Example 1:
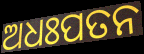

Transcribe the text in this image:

ଅଧଃପତନ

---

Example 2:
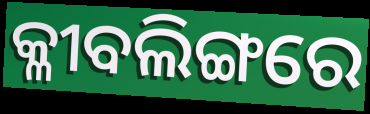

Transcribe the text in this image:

କ୍ଳୀବଲିଙ୍ଗରେ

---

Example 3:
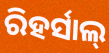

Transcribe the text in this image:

ରିହର୍ସାଲ୍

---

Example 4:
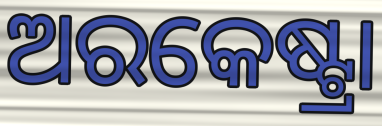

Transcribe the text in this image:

ଅରକେଷ୍ଟ୍ରା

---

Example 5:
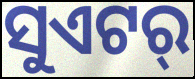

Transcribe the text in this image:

ସୁଏଟର୍